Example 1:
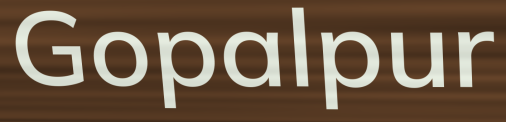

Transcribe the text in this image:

Gopalpur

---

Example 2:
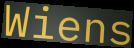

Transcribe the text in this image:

Wiens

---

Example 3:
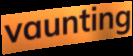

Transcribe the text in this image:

vaunting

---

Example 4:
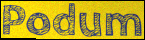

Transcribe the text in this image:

Podum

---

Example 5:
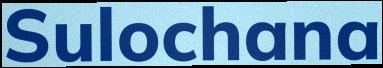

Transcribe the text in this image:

Sulochana